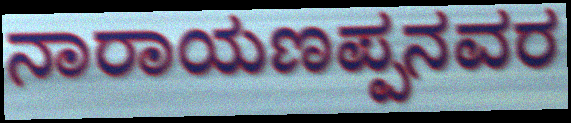
ನಾರಾಯಣಪ್ಪನವರ